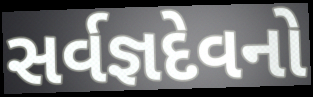
સર્વજ્ઞદેવનો